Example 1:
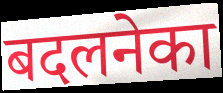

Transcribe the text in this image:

बदलनेका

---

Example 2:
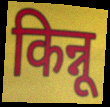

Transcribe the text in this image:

किन्नू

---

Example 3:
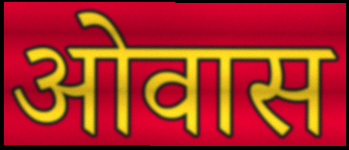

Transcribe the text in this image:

ओवास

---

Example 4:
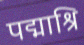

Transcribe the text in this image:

पद्माश्रि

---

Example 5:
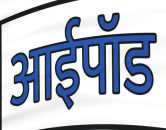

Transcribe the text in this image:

आईपॉड